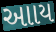
આાય